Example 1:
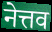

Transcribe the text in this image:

नेत्तव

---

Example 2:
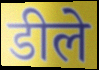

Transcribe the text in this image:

डीले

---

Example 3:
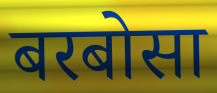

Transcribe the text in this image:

बरबोसा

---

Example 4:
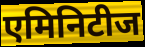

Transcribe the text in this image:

एमिनिटीज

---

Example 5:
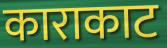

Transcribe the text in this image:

काराकाट